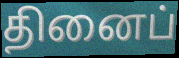
தினைப்